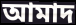
আমাদ